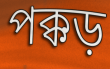
পক্কড়